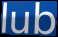
lub